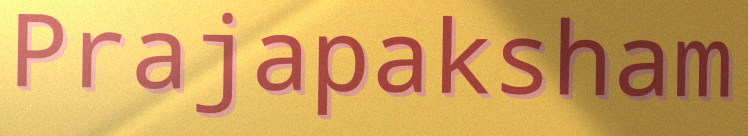
Prajapaksham